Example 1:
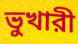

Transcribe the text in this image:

ভুখারী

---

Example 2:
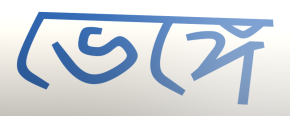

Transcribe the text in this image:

ভেঙ্গে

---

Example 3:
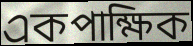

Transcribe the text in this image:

একপাক্ষিক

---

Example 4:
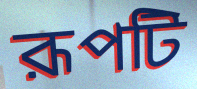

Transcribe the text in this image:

রূপটি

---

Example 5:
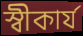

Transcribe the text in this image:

স্বীকার্য